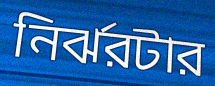
নির্ঝরটার